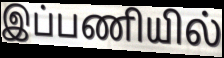
இப்பணியில்